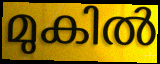
മുകിൽ